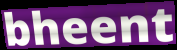
bheent